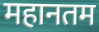
महानतम